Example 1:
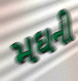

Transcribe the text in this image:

મઘની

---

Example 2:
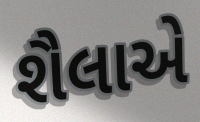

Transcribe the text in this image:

શૈલાએ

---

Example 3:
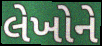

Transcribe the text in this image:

લેખોને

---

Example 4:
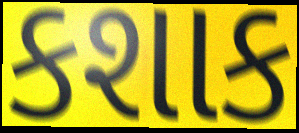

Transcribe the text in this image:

કશાક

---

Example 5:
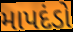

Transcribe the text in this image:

માપદંડો